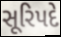
સૂરિપદે